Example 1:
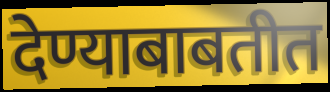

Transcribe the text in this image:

देण्याबाबतीत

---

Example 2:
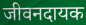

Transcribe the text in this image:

जीवनदायक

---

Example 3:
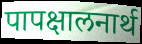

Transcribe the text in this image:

पापक्षालनार्थ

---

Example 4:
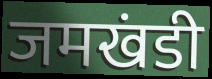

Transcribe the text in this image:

जमखंडी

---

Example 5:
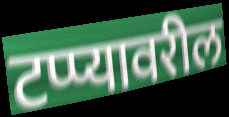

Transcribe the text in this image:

टप्प्यावरील